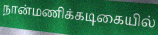
நான்மணிக்கடிகையில்